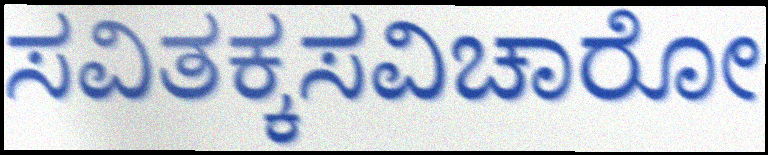
ಸವಿತಕ್ಕಸವಿಚಾರೋ